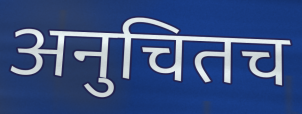
अनुचितच